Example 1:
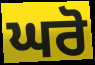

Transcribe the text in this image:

ਘਰੋ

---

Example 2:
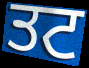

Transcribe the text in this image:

ਤਟ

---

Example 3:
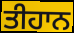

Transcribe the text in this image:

ਤੀਹਾਨ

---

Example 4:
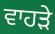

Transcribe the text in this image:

ਵਾਹੜੇ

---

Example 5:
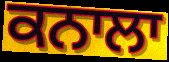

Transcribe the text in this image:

ਕਨਾਲਾ